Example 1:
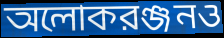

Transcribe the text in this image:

অলোকরঞ্জনও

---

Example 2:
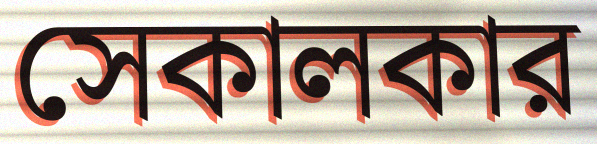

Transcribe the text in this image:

সেকালকার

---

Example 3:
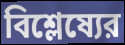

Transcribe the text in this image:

বিশ্লেষ্যের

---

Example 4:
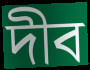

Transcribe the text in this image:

দীব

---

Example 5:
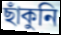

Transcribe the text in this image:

ছাঁকুনি